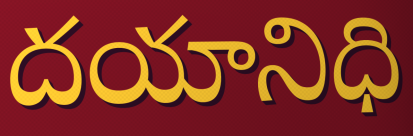
దయానిధి